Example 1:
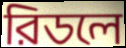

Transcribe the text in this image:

রিডলে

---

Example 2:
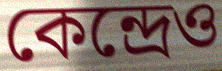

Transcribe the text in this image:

কেন্দ্রেও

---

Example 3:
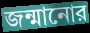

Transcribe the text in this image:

জন্মানোর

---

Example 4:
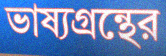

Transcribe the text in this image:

ভাষ্যগ্রন্থের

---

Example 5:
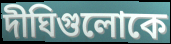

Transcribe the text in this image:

দীঘিগুলোকে